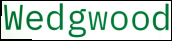
Wedgwood